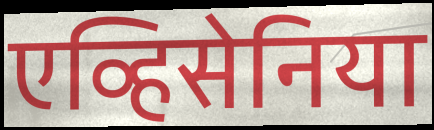
एव्हिसेनिया